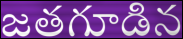
జతగూడిన